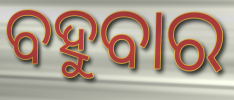
ବହୁବାର